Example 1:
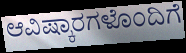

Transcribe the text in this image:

ಆವಿಷ್ಕಾರಗಳೊಂದಿಗೆ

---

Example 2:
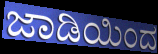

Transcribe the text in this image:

ಜಾಡಿಯಿಂದ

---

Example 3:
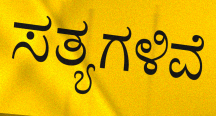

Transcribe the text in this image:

ಸತ್ಯಗಳಿವೆ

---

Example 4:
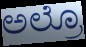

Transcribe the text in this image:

ಅಲ್ರೊ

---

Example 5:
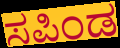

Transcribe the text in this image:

ಸಪಿಂಡ